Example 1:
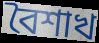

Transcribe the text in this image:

বৈশাখ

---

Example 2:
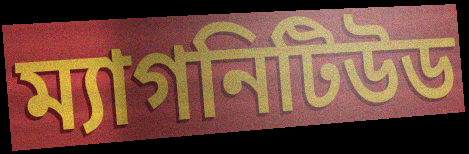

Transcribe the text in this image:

ম্যাগনিটিউড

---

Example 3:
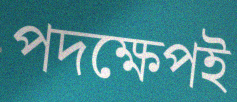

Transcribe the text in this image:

পদক্ষেপই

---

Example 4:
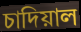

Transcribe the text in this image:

চাদিয়াল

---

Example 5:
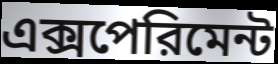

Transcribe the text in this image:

এক্সপেরিমেন্ট